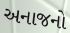
અનાજનો